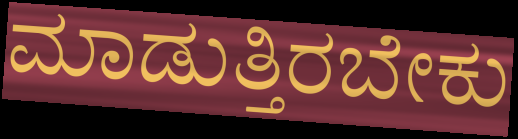
ಮಾಡುತ್ತಿರಬೇಕು